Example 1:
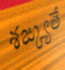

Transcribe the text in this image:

శఙ్క్యతే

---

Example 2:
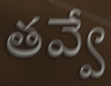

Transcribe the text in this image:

తవ్వే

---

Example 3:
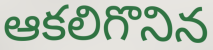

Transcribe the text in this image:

ఆకలిగొనిన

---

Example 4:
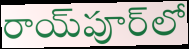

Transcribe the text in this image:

రాయ్‌పూర్‌లో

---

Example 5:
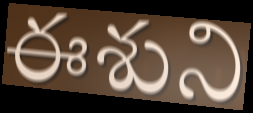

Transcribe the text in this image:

ఈశుని